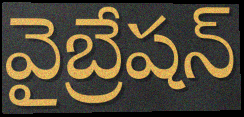
వైబ్రేషన్